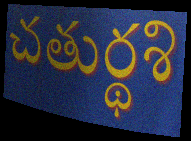
చతుర్థశి